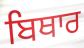
ਬਿਥਾਰ